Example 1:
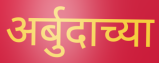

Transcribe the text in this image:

अर्बुदाच्या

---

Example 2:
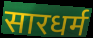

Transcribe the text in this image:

सारधर्म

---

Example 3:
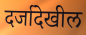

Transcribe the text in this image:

दर्जादेखील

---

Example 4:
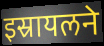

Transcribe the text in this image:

इस्रायलने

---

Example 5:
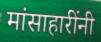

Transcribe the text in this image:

मांसाहारींनी